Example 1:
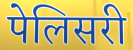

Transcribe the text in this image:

पेलिसरी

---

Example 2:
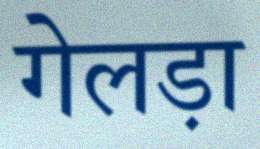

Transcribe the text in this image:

गेलड़ा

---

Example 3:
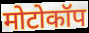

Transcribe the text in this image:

मोटोकॉप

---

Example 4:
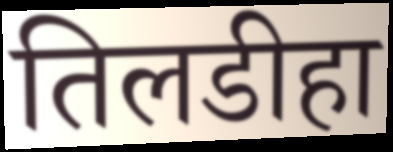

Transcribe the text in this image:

तिलडीहा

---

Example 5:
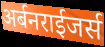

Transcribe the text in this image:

अर्बनराईजर्स